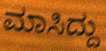
ಮಾಸಿದ್ದು